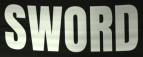
SWORD